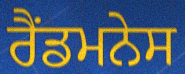
ਰੈਂਡਮਨੇਸ